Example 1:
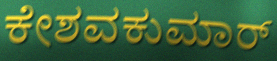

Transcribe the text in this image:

ಕೇಶವಕುಮಾರ್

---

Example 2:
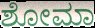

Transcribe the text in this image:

ಶೋಮಾ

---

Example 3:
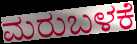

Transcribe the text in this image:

ಮರುಬಳಕೆ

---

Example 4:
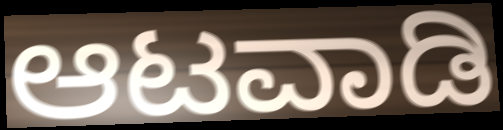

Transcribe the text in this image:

ಆಟವಾಡಿ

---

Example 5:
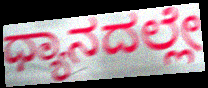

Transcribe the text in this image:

ಧ್ಯಾನದಲ್ಲೇ